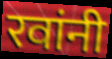
रवांनी